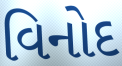
વિનોદ